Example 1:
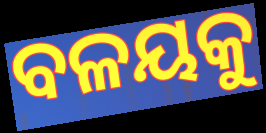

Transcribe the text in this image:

ବଳୟକୁ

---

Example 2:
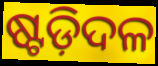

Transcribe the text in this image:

ଷ୍ଟଡ଼ିଦଳ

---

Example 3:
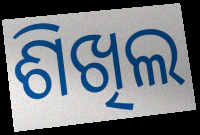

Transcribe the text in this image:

ଶିଖିଲ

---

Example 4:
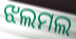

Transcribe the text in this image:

ଝଲମଲ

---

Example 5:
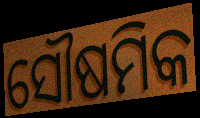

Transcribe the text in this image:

ସୌଷମିକ